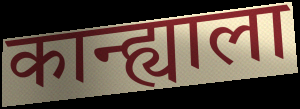
कान्ह्याला